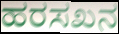
ಹರಸಖನ